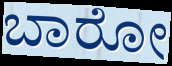
ಬಾರೋ